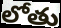
లోతు